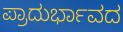
ಪ್ರಾದುರ್ಭಾವದ